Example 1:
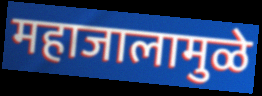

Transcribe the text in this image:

महाजालामुळे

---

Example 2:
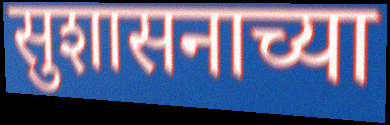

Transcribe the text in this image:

सुशासनाच्या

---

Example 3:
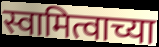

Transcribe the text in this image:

स्वामित्वाच्या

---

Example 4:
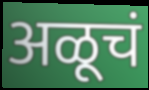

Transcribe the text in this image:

अळूचं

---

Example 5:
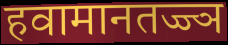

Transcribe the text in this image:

हवामानतज्ज्ञ